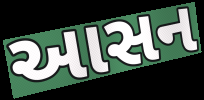
આસન